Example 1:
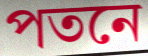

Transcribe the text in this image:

পতনে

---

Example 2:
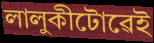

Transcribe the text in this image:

লালুকীটোৱেই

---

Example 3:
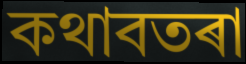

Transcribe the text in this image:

কথাবতৰা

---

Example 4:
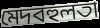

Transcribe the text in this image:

মেদবহুলতা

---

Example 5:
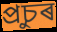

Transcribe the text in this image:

প্ৰচুৰ